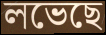
লভেছে